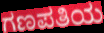
ಗಣಪತಿಯ